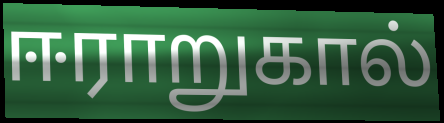
ஈராறுகால்